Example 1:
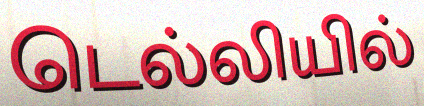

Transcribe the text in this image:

டெல்லியில்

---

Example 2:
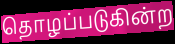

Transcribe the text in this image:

தொழப்படுகின்ற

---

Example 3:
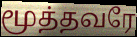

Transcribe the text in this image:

மூத்தவரே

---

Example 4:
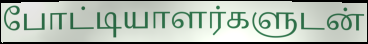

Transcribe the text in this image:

போட்டியாளர்களுடன்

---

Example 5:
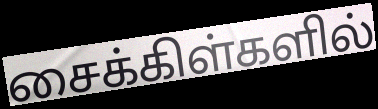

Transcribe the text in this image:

சைக்கிள்களில்